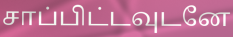
சாப்பிட்டவுடனே